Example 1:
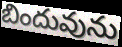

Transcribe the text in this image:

బిందువును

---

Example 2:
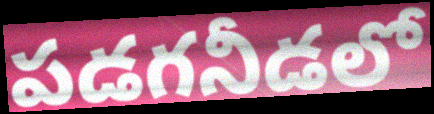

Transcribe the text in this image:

పడగనీడలో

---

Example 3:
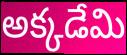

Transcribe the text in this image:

అక్కడేమి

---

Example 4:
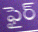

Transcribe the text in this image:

ఫైర్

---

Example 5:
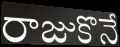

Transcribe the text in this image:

రాజుకొనే